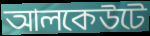
আলকেউটে